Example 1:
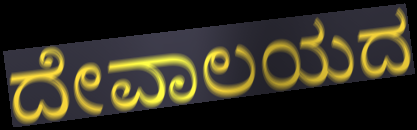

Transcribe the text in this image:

ದೇವಾಲಯದ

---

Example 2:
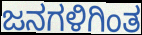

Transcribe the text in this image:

ಜನಗಳಿಗಿಂತ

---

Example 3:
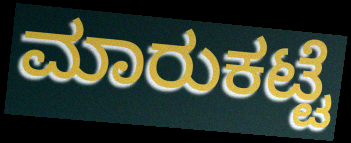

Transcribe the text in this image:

ಮಾರುಕಟ್ಟೆ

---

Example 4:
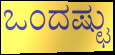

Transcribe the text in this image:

ಒಂದಷ್ಟು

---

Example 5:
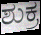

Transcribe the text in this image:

ಶುಕ್ರ